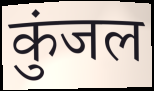
कुंजल